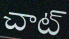
చాట్